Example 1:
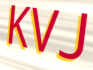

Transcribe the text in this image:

KVJ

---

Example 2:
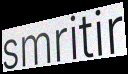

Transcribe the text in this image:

smritir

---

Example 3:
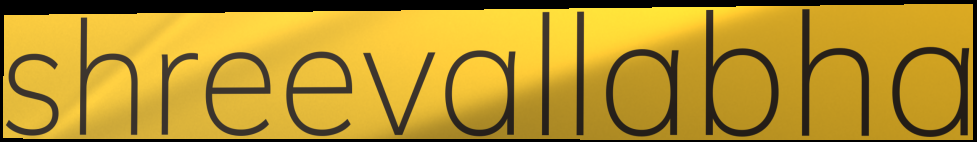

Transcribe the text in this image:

shreevallabha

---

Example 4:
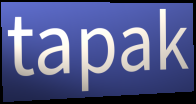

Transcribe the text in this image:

tapak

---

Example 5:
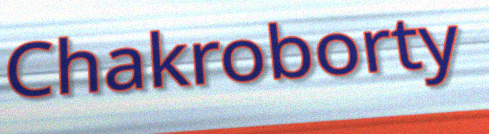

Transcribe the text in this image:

Chakroborty